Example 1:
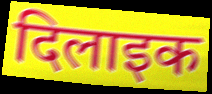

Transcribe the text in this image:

दिलाइक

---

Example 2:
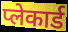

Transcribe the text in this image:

प्लेकार्ड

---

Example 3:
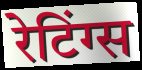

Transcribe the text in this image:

रेटिंग्स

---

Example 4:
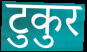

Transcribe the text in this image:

टुकुर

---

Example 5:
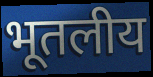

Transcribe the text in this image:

भूतलीय